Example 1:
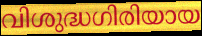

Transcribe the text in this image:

വിശുദ്ധഗിരിയായ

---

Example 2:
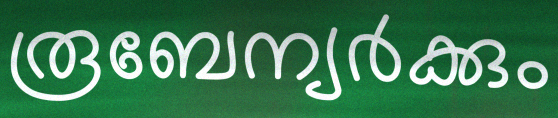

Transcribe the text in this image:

രൂബേന്യർക്കും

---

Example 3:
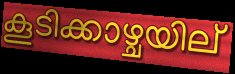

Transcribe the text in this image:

കൂടിക്കാഴ്ചയില്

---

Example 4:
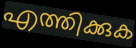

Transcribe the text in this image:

എത്തിക്കുക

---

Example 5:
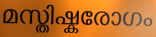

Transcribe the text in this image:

മസ്തിഷ്കരോഗം